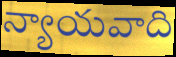
న్యాయవాది